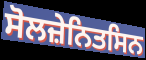
ਸੋਲਜ਼ੇਨਿਤਸਿਨ